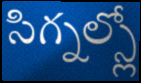
సిగ్నల్స్లో